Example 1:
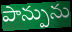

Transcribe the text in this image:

పాన్పును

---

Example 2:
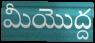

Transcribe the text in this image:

మీయొద్ద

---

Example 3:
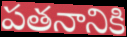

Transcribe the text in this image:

పతనానికి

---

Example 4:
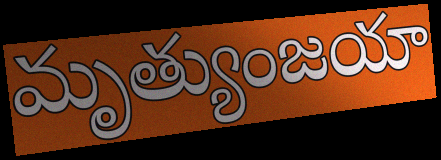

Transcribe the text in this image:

మృత్యుంజయా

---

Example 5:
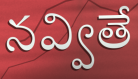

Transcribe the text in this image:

నవ్వితే